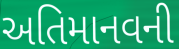
અતિમાનવની